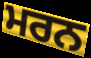
ਮਰਨ